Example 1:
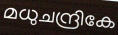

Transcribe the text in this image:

മധുചന്ദ്രികേ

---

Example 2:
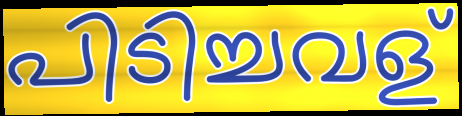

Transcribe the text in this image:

പിടിച്ചവള്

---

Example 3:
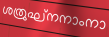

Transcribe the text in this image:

ശത്രുഘ്നനാംനാ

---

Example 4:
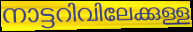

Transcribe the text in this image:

നാട്ടറിവിലേക്കുള്ള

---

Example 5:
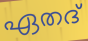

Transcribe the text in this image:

ഏതദ്